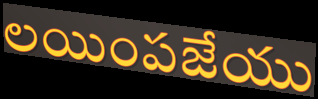
లయింపజేయు